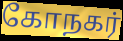
கோநகர்